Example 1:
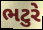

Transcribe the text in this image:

ભટુરે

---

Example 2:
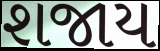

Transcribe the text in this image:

શજાય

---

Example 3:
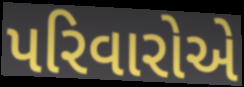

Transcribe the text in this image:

પરિવારોએ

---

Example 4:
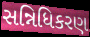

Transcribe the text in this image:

સન્નિધિકરણ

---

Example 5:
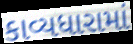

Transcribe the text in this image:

કાવ્યધારામાં